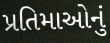
પ્રતિમાઓનું